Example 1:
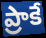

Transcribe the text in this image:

ప్రాకే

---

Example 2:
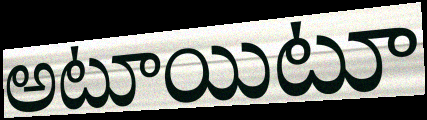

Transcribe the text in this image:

అటూయిటూ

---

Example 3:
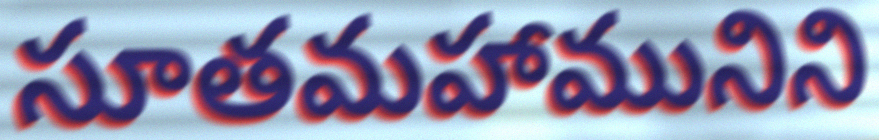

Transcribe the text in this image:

సూతమహామునిని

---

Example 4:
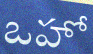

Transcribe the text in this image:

ఒహో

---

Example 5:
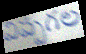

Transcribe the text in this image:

విప్పగల